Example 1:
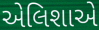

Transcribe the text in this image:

એલિશાએ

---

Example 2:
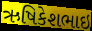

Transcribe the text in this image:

ઋષિકેશભાઇ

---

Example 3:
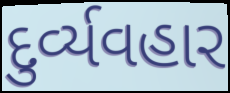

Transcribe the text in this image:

દુર્વ્યવહાર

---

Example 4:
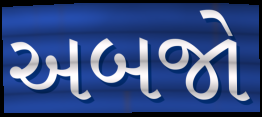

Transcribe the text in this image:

અબજો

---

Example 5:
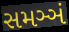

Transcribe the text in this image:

સમઞ્ઞં